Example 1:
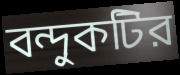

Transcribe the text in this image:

বন্দুকটির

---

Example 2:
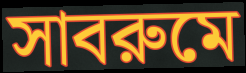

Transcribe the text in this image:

সাবরুমে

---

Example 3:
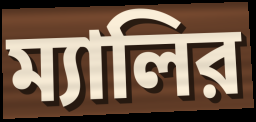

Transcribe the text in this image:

ম্যালির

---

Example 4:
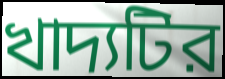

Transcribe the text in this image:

খাদ্যটির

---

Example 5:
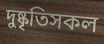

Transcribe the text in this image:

দুষ্কৃতিসকল